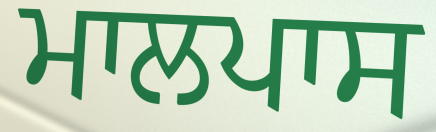
ਮਾਲਪਾਸ